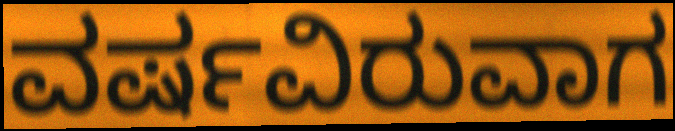
ವರ್ಷವಿರುವಾಗ